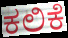
ಕಲಿಕೆ